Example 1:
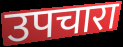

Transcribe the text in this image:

उपचारा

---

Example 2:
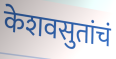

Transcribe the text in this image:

केशवसुतांचं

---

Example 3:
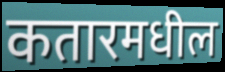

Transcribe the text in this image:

कतारमधील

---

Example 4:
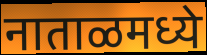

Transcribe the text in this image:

नाताळमध्ये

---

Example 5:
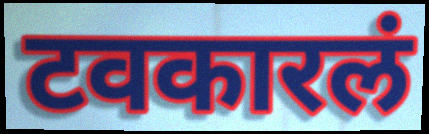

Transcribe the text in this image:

टवकारलं